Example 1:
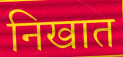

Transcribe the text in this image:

निखात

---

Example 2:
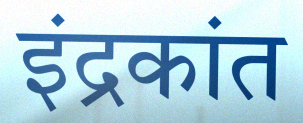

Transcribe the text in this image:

इंद्रकांत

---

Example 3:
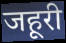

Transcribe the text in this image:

जहूरी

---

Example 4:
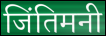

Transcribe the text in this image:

जिंतिमनी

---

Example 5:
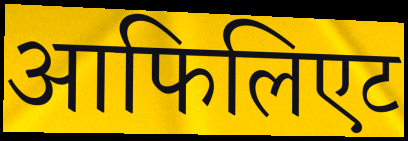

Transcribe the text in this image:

आफिलिएट